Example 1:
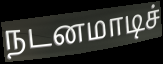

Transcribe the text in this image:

நடனமாடிச்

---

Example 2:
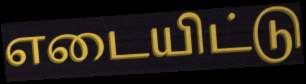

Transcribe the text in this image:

எடையிட்டு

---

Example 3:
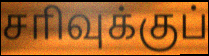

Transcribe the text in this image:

சரிவுக்குப்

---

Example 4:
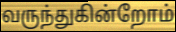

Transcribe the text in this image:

வருந்துகின்றோம்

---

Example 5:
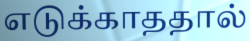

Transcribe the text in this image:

எடுக்காததால்